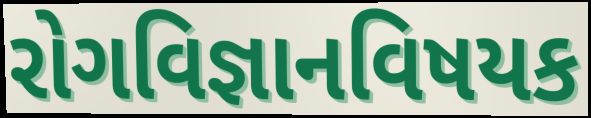
રોગવિજ્ઞાનવિષયક